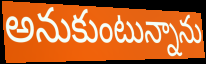
అనుకుంటున్నాను